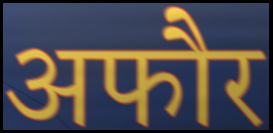
अफौर